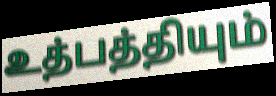
உத்பத்தியும்